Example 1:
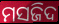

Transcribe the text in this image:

ମସଜିଦ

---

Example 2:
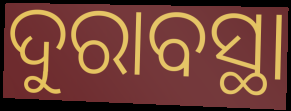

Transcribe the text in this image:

ଦୁରାବସ୍ଥା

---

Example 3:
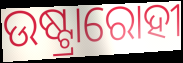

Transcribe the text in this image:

ଉଷ୍ଟ୍ରାରୋହୀ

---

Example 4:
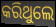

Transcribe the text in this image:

କରିଥୁଲେ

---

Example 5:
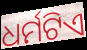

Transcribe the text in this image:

ଧର୍ମଟିଏ